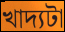
খাদ্যটা